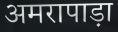
अमरापाड़ा